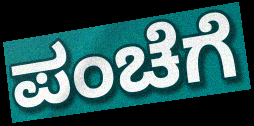
ಪಂಚೆಗೆ